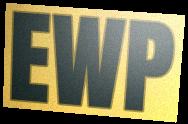
EWP